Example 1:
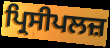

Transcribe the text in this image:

ਪ੍ਰਿਸੀਪਲਜ਼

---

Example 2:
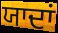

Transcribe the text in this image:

ਯਾਦਾਂ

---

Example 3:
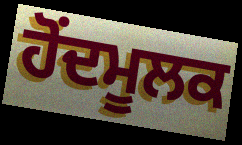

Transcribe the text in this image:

ਹੋਂਦਮੂਲਕ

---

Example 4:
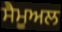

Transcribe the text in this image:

ਸੈਮੂਅਲ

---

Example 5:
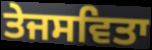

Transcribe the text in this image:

ਤੇਜਸਵਿਤਾ